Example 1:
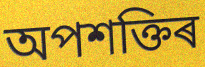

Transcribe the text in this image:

অপশক্তিৰ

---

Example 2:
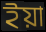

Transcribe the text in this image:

ইয়া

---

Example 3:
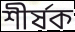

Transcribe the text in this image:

শীৰ্ষক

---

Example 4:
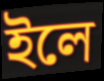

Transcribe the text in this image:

ইলে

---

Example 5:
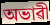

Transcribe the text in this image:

অভাৱী